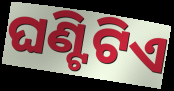
ଘଣ୍ଟିଟିଏ